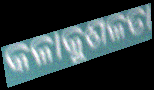
କଳାକୁଶଳତା